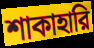
শাকাহারি